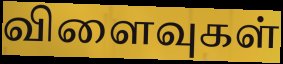
விளைவுகள்